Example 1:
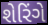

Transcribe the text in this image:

શેરિંગે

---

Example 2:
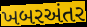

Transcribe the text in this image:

ખબરઅંતર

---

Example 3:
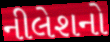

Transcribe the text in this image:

નીલેશનો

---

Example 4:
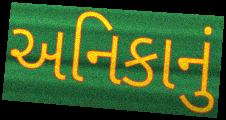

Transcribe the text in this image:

અનિકાનું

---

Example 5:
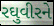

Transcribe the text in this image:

રઘુવીરને